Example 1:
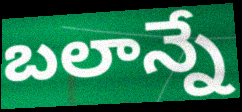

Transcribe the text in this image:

బలాన్నే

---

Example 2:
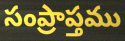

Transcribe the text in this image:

సంప్రాప్తము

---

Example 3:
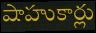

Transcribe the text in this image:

షాహుకార్లు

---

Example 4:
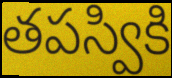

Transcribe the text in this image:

తపస్వికి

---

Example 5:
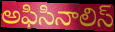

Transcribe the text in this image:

అఫిసినాలిస్